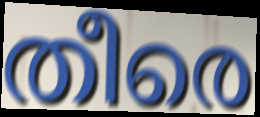
തീരെ